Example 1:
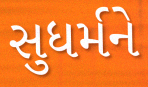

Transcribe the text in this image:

સુધર્મને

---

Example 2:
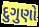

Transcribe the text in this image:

દુગુણો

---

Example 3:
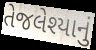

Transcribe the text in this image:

તેજલેશ્યાનું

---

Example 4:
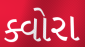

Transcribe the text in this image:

ક્વોરા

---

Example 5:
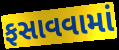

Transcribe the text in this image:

ફસાવવામાં